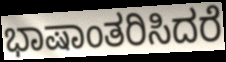
ಭಾಷಾಂತರಿಸಿದರೆ